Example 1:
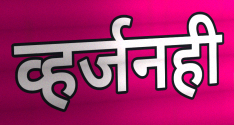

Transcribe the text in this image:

व्हर्जनही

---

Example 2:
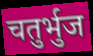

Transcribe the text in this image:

चतुर्भुज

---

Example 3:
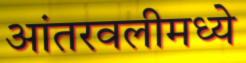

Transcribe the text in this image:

आंतरवलीमध्ये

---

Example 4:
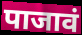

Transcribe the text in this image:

पाजावं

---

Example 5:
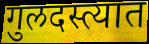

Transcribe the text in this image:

गुलदस्त्यात